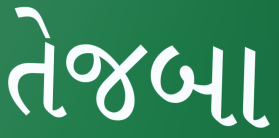
તેજબા